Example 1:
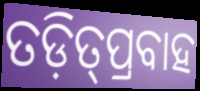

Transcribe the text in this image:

ତଡ଼ିତ୍‍ପ୍ରବାହ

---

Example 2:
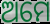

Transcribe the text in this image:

ଅମେ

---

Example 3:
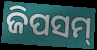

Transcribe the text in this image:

ଜିପସମ୍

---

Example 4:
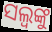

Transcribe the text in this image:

ସଲ୍ୱଙ୍କୁ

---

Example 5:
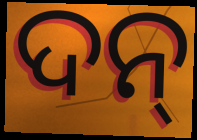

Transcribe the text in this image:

ଦନ୍